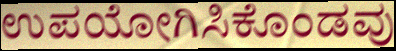
ಉಪಯೋಗಿಸಿಕೊಂಡವು